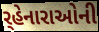
ર્‌હેનારાઓની